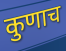
कुणाच